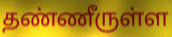
தண்ணீருள்ள